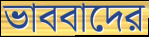
ভাববাদের